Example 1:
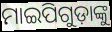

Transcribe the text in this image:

ମାଇପିଗୁଡ଼ାଙ୍କୁ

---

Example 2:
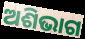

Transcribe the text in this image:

ଅଶିଭାଗ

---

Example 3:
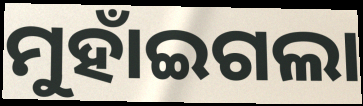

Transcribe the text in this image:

ମୁହାଁଇଗଲା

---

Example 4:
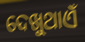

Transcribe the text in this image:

ଦେଖୁଥାଏଁ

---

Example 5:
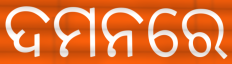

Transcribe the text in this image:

ଦମନରେ